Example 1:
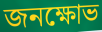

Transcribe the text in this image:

জনক্ষোভ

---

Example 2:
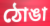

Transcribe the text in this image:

ঠোঙা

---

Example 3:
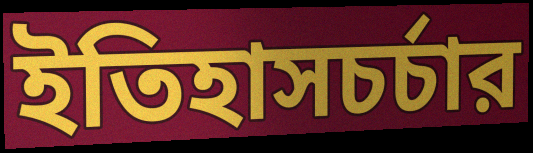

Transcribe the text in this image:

ইতিহাসচর্চার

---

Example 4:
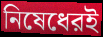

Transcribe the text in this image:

নিষেধেরই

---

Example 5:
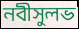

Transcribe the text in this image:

নবীসুলভ